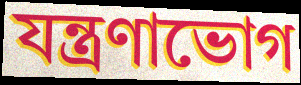
যন্ত্রণাভোগ